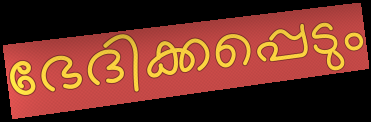
ഭേദിക്കപ്പെടും